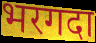
भरगदा